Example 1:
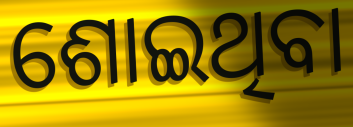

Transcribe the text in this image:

ଶୋଇଥିବା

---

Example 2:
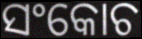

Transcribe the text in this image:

ସଂକୋଚ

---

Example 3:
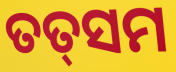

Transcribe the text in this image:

ତତ୍‌ସମ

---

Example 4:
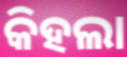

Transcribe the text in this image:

କିହଲା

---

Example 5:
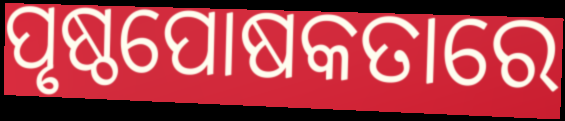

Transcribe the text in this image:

ପୃଷ୍ଠପୋଷକତାରେ